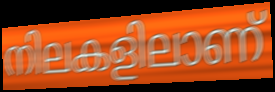
നിലകളിലാണ്